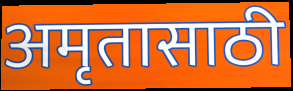
अमृतासाठी